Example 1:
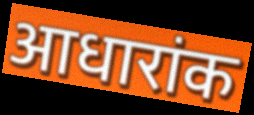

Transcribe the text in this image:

आधारांक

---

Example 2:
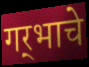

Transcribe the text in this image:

गर्भाचे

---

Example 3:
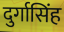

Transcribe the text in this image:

दुर्गासिंह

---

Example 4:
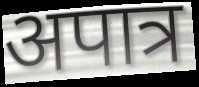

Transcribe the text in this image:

अपात्र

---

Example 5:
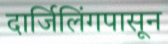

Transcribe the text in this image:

दार्जिलिंगपासून